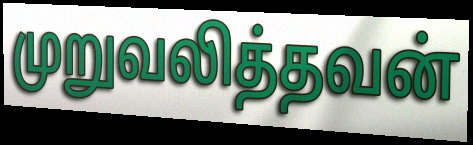
முறுவலித்தவன்